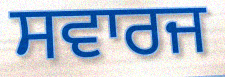
ਸਵਾਰਜ